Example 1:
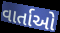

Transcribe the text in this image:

વાર્તાઓ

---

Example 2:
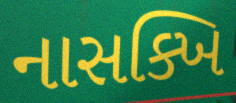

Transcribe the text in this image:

નાસક્ખિ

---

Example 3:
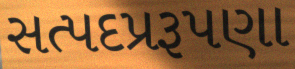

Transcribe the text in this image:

સત્પદપ્રરૂપણા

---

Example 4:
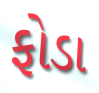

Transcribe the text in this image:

ફોડા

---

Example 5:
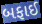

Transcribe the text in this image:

બફાઈ